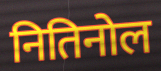
नितिनोल